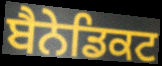
ਬੈਨੇਡਿਕਟ